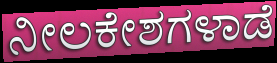
ನೀಲಕೇಶಗಳಾಡೆ